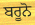
ਬਰੂਨੋ